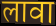
लावा